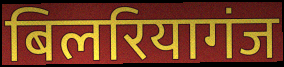
बिलरियागंज